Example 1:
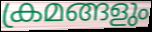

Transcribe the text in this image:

ക്രമങ്ങളും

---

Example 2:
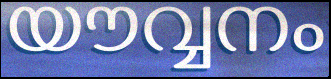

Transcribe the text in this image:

യൗവ്വനം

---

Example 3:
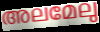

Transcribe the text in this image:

അലമേലു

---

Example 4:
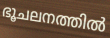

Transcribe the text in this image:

ഭൂചലനത്തിൽ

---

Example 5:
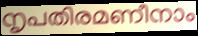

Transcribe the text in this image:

നൃപതിരമണീനാം